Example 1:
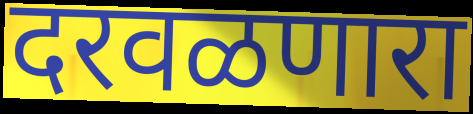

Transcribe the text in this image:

दरवळणारा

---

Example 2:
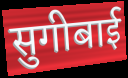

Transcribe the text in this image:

सुगीबाई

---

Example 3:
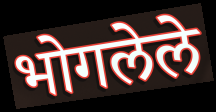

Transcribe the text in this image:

भोगलेले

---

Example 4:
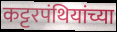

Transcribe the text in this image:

कट्टरपंथियांच्या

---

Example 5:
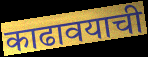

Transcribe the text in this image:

काढावयाची